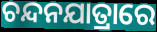
ଚନ୍ଦନଯାତ୍ରାରେ